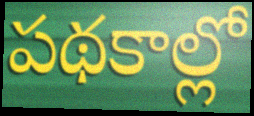
పథకాల్లో